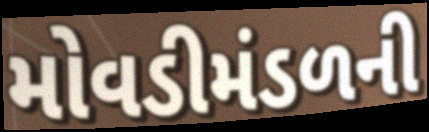
મોવડીમંડળની